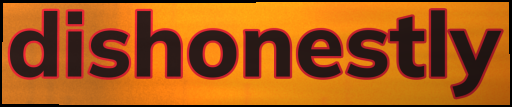
dishonestly